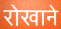
रोखाने